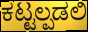
ಕಟ್ಟಲ್ಪಡಲಿ